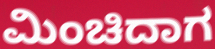
ಮಿಂಚಿದಾಗ